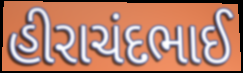
હીરાચંદભાઈ